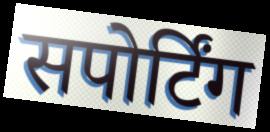
सपोर्टिंग